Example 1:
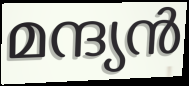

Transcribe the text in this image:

മന്ദ്യൻ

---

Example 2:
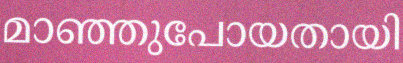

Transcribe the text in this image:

മാഞ്ഞുപോയതായി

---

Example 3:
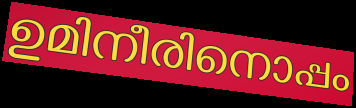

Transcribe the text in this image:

ഉമിനീരിനൊപ്പം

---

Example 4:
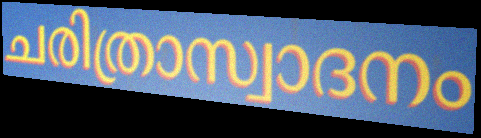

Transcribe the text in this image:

ചരിത്രാസ്വാദനം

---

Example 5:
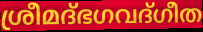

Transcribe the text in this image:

ശ്രീമദ്ഭഗവദ്ഗീത